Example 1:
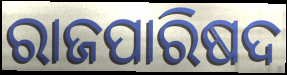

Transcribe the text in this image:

ରାଜପାରିଷଦ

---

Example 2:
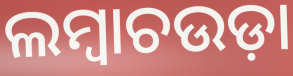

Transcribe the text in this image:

ଲମ୍ୱାଚଉଡ଼ା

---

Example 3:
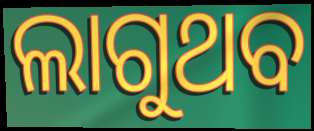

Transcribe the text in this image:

ଲାଗୁଥବ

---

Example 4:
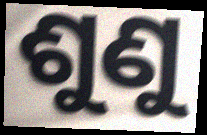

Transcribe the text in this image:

ଶୁଣୁ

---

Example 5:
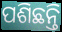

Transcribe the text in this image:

ପଶିଛନ୍ତି